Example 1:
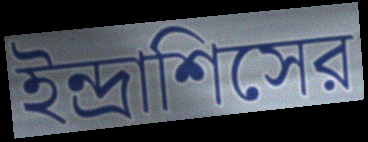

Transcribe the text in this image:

ইন্দ্রাশিসের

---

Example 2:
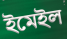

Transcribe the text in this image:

ইমেইল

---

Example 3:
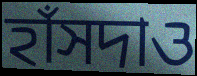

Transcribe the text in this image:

হাঁসদাও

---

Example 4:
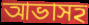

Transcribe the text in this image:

আভাসহ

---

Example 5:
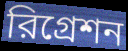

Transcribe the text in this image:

রিগ্রেশন